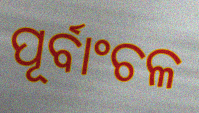
ପୂର୍ବାଂଚଳ